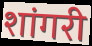
शांगरी